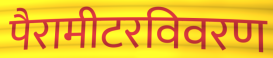
पैरामीटरविवरण